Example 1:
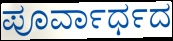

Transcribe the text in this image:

ಪೂರ್ವಾರ್ಧದ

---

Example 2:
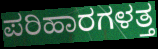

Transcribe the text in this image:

ಪರಿಹಾರಗಳತ್ತ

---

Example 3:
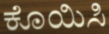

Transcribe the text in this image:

ಕೊಯಿಸಿ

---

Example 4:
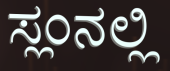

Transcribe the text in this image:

ಸ್ಲಂನಲ್ಲಿ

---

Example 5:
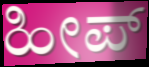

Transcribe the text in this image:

ಹೀಪ್